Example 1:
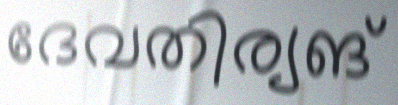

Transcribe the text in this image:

ദേവതിര്യങ്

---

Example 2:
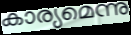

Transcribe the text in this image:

കാര്യമെന്നു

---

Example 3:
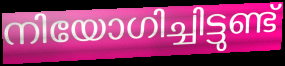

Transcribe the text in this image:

നിയോഗിച്ചിട്ടുണ്ട്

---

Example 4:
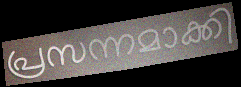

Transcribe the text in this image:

പ്രസന്നമാക്കി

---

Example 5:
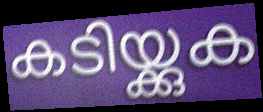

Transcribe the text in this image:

കടിയ്ക്കുക